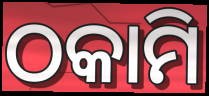
ଠକାମି